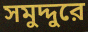
সমুদ্দুরে